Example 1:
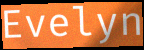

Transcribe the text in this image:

Evelyn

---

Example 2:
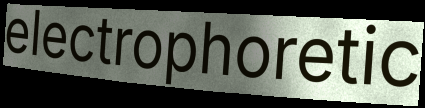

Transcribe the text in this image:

electrophoretic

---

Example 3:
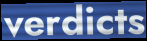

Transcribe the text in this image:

verdicts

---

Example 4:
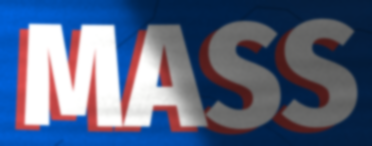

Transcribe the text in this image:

MASS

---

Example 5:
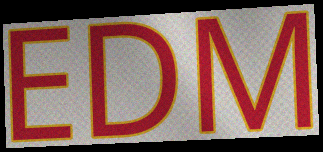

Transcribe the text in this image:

EDM